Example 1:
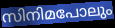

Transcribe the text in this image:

സിനിമപോലും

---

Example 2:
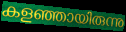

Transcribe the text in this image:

കളഞ്ഞായിരുന്നു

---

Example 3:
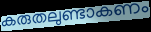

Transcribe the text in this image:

കരുതലുണ്ടാകണം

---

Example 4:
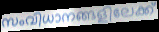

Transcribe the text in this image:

സംവിധാനങ്ങളിലേക്ക്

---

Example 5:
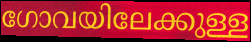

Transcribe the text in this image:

ഗോവയിലേക്കുള്ള